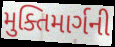
મુક્તિમાર્ગની